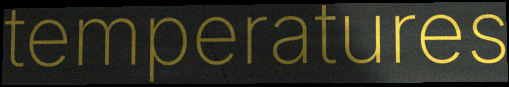
temperatures